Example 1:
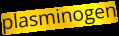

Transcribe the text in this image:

plasminogen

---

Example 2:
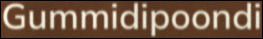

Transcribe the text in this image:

Gummidipoondi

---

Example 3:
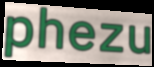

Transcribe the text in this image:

phezu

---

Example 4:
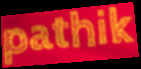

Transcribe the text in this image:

pathik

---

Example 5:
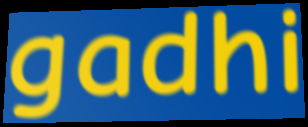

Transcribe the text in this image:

gadhi